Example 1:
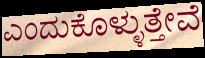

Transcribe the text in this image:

ಎಂದುಕೊಳ್ಳುತ್ತೇವೆ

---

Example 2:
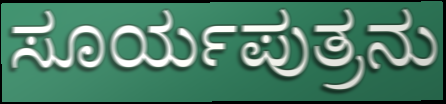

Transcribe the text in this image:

ಸೂರ್ಯಪುತ್ರನು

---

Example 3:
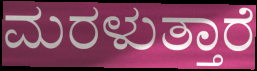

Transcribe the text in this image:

ಮರಳುತ್ತಾರೆ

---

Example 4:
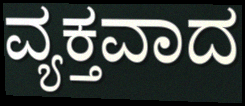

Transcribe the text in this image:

ವ್ಯಕ್ತವಾದ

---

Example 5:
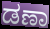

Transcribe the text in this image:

ಡಣಾ